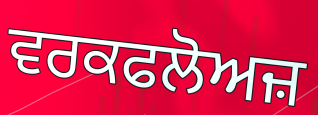
ਵਰਕਫਲੋਅਜ਼